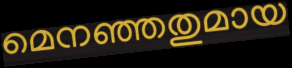
മെനഞ്ഞതുമായ